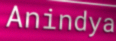
Anindya